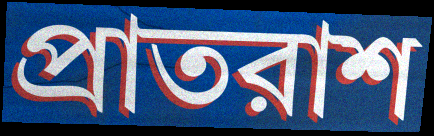
প্রাতরাশ